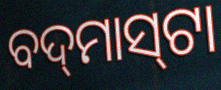
ବଦ୍‌ମାସ୍‌ଟା